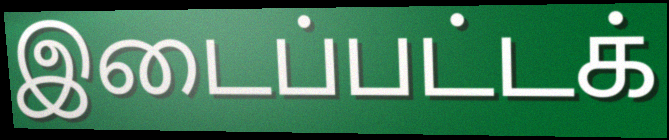
இடைப்பட்டக்